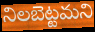
నిలబెట్టమని